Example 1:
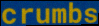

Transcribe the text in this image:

crumbs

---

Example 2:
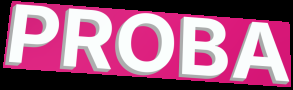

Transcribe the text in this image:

PROBA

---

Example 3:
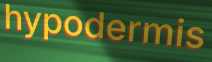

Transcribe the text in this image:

hypodermis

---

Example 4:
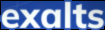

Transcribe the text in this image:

exalts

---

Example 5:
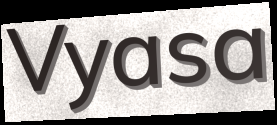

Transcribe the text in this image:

Vyasa